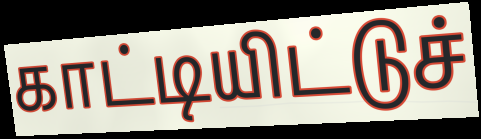
காட்டியிட்டுச்